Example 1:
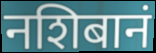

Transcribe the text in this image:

नशिबानं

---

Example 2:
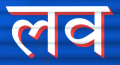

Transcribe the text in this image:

लव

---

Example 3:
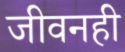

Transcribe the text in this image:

जीवनही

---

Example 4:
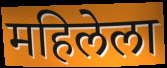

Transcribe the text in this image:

महिलेला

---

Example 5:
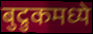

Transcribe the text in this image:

बुद्रुकमध्ये